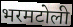
भरमटोली